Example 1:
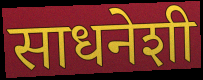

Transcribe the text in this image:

साधनेशी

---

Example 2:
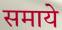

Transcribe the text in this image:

समाये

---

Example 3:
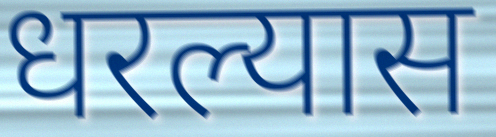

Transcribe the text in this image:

धरल्यास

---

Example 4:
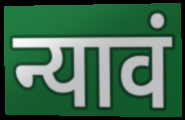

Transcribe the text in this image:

न्यावं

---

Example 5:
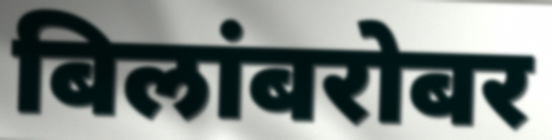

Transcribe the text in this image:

बिलांबरोबर